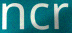
ncr